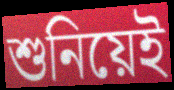
শুনিয়েই